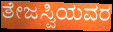
ತೇಜಸ್ವಿಯವರ